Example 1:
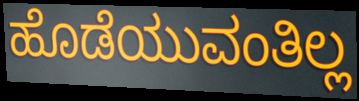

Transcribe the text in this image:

ಹೊಡೆಯುವಂತಿಲ್ಲ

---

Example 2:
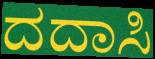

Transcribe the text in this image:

ದದಾಸಿ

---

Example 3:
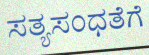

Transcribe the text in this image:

ಸತ್ಯಸಂಧತೆಗೆ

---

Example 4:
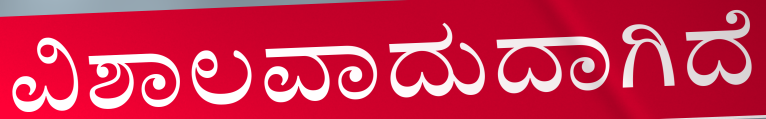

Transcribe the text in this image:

ವಿಶಾಲವಾದುದಾಗಿದೆ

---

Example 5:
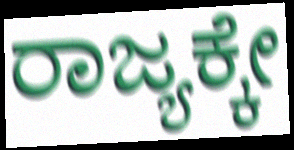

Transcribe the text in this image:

ರಾಜ್ಯಕ್ಕೇ